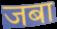
जबा